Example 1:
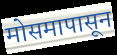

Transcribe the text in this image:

मोसमापासून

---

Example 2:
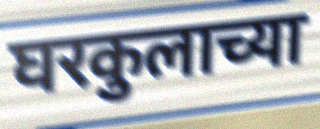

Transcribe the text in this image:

घरकुलाच्या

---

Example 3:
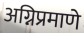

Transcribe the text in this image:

अग्निप्रमाणे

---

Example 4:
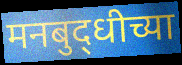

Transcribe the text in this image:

मनबुद्धीच्या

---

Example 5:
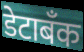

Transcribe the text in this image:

डेटाबँक